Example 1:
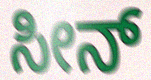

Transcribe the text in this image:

ಸೀನ್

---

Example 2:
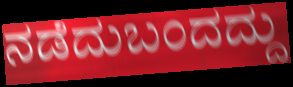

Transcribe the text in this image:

ನಡೆದುಬಂದದ್ದು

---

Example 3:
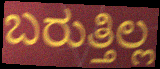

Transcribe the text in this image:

ಬರುತ್ತಿಲ್ಲ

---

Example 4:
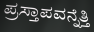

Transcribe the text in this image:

ಪ್ರಸ್ತಾಪವನ್ನೆತ್ತಿ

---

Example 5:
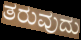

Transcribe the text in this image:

ತರುವುದು